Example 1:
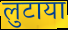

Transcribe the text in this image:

लुटाया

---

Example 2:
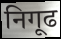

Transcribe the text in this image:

निगूढ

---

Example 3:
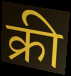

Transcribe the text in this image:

क्री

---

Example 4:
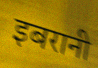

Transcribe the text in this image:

इबरानी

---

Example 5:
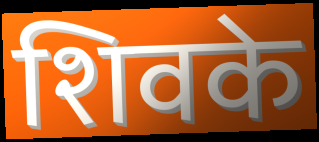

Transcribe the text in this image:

शिवके